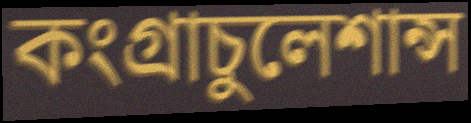
কংগ্রাচুলেশান্স